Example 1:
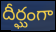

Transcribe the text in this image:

దీర్ఘంగా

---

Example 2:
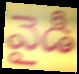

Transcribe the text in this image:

వైడీ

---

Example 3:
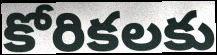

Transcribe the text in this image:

కోరికలకు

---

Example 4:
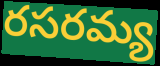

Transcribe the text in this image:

రసరమ్య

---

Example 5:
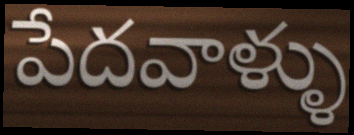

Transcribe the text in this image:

పేదవాళ్ళు